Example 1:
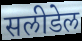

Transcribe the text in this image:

सलीडेल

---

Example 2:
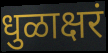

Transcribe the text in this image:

धुळाक्षरं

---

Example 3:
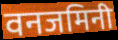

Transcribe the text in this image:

वनजमिनी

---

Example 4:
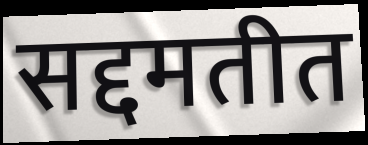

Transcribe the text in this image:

सद्दमतीत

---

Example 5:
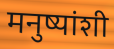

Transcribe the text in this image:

मनुष्यांशी